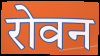
रोवन